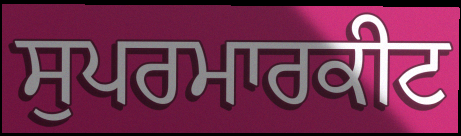
ਸੁਪਰਮਾਰਕੀਟ